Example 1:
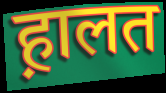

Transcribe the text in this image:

ह़ालत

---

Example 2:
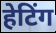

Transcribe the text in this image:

हेटिंग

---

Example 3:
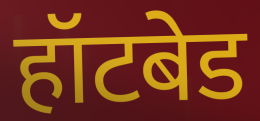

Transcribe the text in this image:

हॉटबेड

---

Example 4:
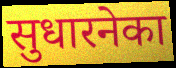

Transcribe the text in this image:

सुधारनेका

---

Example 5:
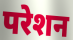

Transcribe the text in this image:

परेशन